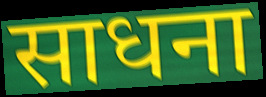
साधना